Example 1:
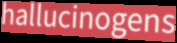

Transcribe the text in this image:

hallucinogens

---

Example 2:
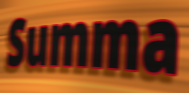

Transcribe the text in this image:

Summa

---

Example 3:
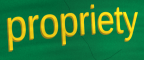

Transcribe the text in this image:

propriety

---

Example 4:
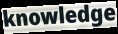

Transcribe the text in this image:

knowledge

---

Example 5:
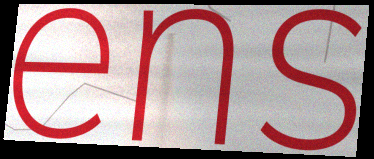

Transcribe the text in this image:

ens